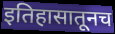
इतिहासातूनच